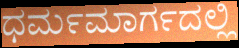
ಧರ್ಮಮಾರ್ಗದಲ್ಲಿ